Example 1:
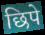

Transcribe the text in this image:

छिपे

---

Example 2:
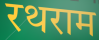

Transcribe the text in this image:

रथराम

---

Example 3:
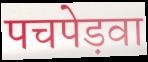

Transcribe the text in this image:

पचपेड़वा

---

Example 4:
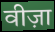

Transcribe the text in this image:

वीज़ा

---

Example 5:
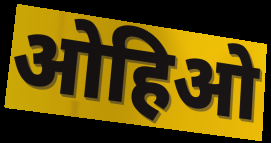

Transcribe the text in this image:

ओहिओ